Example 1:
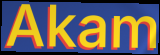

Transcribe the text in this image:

Akam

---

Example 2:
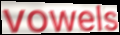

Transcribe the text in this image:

vowels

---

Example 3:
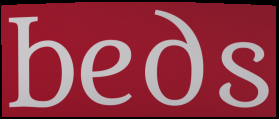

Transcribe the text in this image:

beds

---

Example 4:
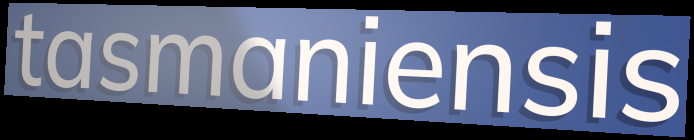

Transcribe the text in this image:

tasmaniensis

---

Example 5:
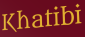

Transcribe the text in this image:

Khatibi